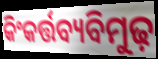
କିଂକର୍ତ୍ତବ୍ୟବିମୁଢ଼